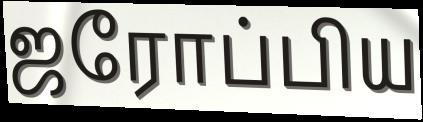
ஜரோப்பிய